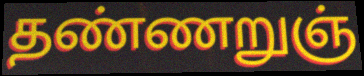
தண்ணறுஞ்